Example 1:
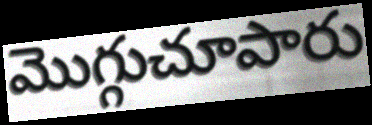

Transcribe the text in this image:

మొగ్గుచూపారు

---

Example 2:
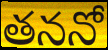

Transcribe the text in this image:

తననో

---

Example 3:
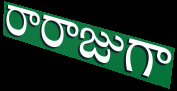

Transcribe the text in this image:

రారాజుగా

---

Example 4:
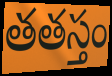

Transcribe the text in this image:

తతస్తం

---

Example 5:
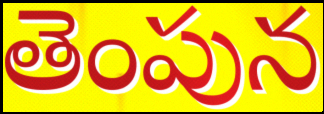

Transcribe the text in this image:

తెంపున